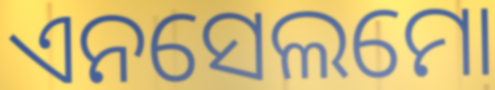
ଏନସେଲମୋ